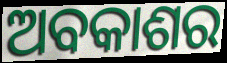
ଅବକାଶର